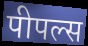
पीपल्स